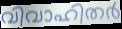
വിവാഹിതർ